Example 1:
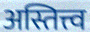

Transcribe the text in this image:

अस्तित्त्व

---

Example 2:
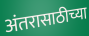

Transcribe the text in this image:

अंतरासाठीच्या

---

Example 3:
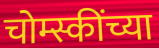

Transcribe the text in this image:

चोम्स्कींच्या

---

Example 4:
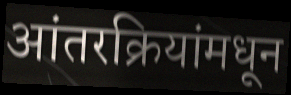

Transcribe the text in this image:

आंतरक्रियांमधून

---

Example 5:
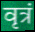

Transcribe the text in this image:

वृत्रं